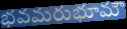
భవమరుభూమౌ